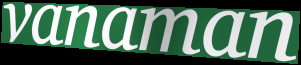
vanaman